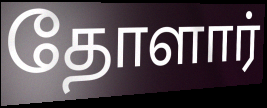
தோளார்